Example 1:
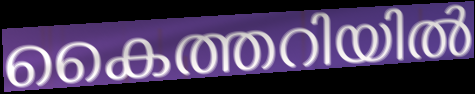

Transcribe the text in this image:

കൈത്തറിയിൽ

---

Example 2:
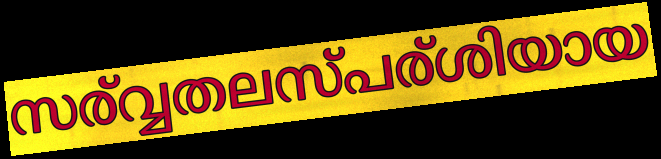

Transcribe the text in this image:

സര്വ്വതലസ്പര്ശിയായ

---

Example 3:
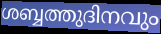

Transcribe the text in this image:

ശബ്ബത്തുദിനവും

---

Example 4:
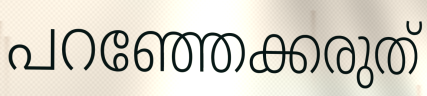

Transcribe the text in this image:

പറഞ്ഞേക്കരുത്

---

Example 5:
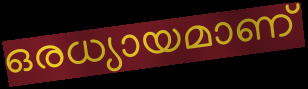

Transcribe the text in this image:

ഒരധ്യായമാണ്